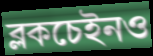
ব্লকচেইনও